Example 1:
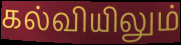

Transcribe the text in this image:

கல்வியிலும்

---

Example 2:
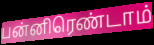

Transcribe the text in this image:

பன்னிரெண்டாம்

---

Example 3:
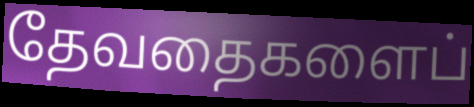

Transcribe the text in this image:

தேவதைகளைப்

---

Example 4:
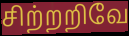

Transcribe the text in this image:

சிற்றறிவே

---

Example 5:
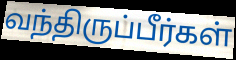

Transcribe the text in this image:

வந்திருப்பீர்கள்